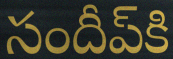
సందీప్‌కి